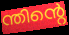
ന്തിന്റെ